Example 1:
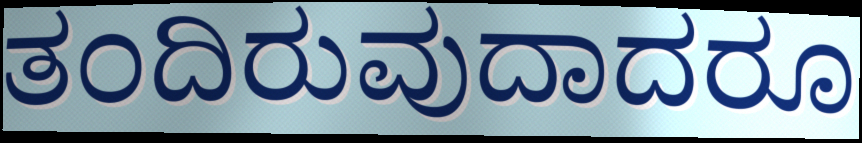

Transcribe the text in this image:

ತಂದಿರುವುದಾದರೂ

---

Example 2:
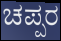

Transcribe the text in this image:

ಚಪ್ಪರ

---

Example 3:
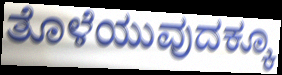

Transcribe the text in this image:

ತೊಳೆಯುವುದಕ್ಕೂ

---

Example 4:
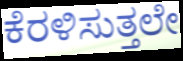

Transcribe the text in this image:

ಕೆರಳಿಸುತ್ತಲೇ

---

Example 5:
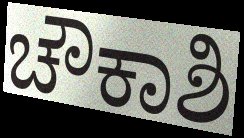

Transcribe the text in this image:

ಚೌಕಾಶಿ